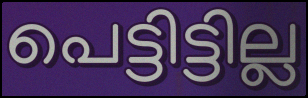
പെട്ടിട്ടില്ല